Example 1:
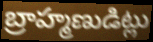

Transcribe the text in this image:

బ్రాహ్మణుడిట్లు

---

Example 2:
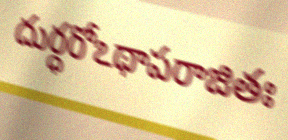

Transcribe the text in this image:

దుర్ధరోఽథాపరాజితః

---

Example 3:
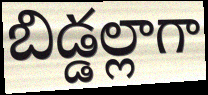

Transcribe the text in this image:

బిడ్డల్లాగా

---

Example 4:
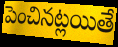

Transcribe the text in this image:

పెంచినట్లయితే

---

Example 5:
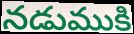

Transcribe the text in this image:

నడుముకి